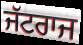
ਜੱਟਰਾਜ